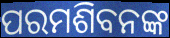
ପରମଶିବନଙ୍କ